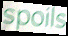
spoils